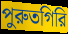
পুরুতগিরি